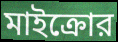
মাইক্রোর